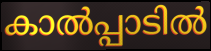
കാൽപ്പാടിൽ